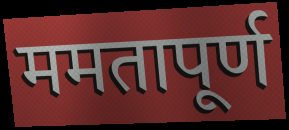
ममतापूर्ण